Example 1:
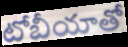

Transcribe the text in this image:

టోబీయాతో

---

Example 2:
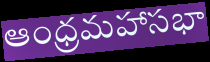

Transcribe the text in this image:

ఆంధ్రమహాసభా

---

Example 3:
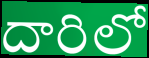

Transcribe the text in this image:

దారిలో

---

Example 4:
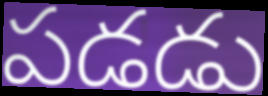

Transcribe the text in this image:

పడడు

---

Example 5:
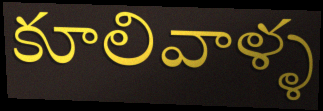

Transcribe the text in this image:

కూలివాళ్ళ